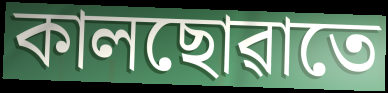
কালছোৱাতে